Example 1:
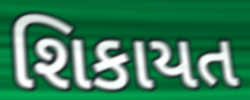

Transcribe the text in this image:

શિકાયત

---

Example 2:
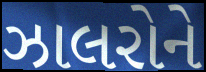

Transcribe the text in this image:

ઝાલરોને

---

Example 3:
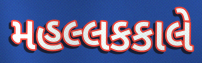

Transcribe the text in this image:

મહલ્લકકાલે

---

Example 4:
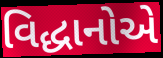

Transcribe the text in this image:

વિદ્ધાનોએ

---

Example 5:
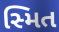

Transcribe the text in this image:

સ્મિત